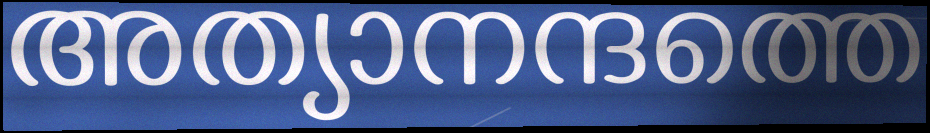
അത്യാനന്ദത്തെ